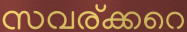
സവര്ക്കറെ